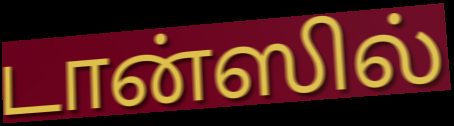
டான்ஸில்